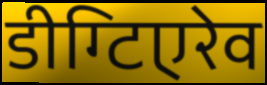
डीग्टिएरेव